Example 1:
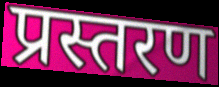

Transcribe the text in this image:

प्रस्तरण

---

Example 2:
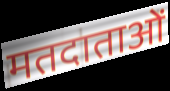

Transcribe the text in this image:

मतदाताओें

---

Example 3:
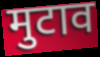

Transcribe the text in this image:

मुटाव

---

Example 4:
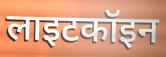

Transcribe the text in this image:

लाइटकॉइन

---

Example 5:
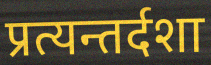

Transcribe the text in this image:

प्रत्यन्तर्दशा